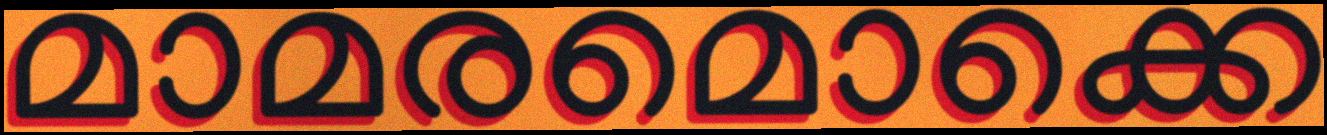
മാമരമൊക്കെ